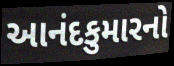
આનંદકુમારનો